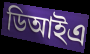
ডিআইএ